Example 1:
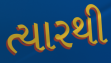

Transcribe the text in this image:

ત્યારથી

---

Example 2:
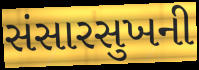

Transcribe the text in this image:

સંસારસુખની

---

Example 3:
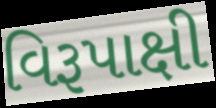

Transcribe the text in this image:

વિરૂપાક્ષી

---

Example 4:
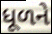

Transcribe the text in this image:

ધૂળને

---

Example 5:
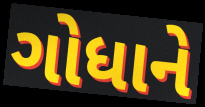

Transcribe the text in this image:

ગોધાને